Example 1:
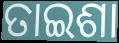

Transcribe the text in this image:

ତାଇଶା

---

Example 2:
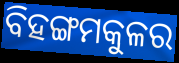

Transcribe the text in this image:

ବିହଙ୍ଗମକୁଳର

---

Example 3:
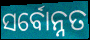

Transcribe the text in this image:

ସର୍ବୋନ୍ନତ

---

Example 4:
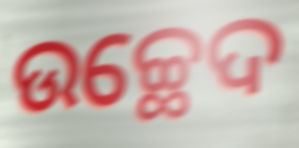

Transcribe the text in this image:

ଉଚ୍ଛେଦ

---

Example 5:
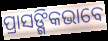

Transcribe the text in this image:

ପ୍ରାସଙ୍ଗିକଭାବେ